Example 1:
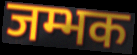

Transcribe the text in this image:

जम्भक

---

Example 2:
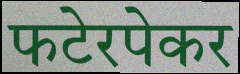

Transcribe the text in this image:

फटेरपेकर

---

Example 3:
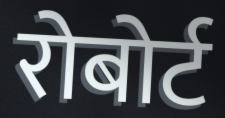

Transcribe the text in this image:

रोबोर्ट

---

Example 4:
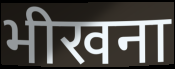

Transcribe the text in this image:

भीखना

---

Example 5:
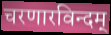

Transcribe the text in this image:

चरणारविन्दम्